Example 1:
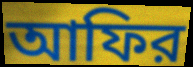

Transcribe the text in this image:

আফির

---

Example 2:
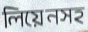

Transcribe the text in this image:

লিয়েনসহ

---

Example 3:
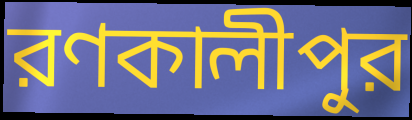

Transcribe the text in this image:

রণকালীপুর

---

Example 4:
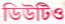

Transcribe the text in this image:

ডিউটিও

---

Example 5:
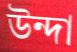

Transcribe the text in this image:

উন্দা